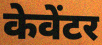
केवेंटर